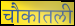
चौकातली